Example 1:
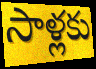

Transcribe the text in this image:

సాళ్లకు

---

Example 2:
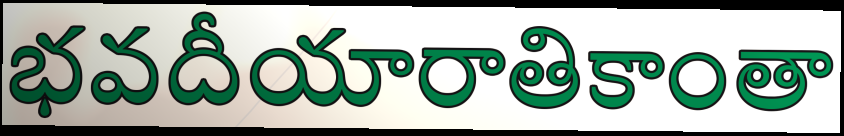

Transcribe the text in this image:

భవదీయారాతికాంతా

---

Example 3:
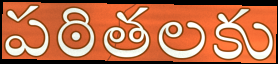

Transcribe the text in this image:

పఠితలకు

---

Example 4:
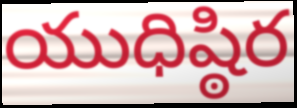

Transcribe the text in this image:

యుధిష్ఠిర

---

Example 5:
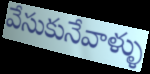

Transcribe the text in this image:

వేసుకునేవాళ్ళు